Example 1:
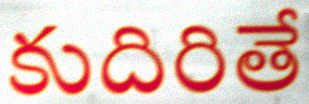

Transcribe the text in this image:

కుదిరితే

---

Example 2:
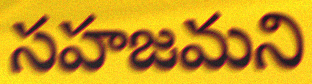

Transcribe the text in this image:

సహజమని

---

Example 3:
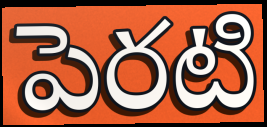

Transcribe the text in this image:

పెరటి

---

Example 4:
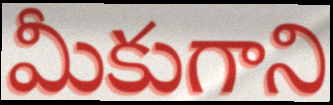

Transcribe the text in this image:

మీకుగాని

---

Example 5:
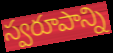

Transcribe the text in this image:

స్వరూపాన్ని